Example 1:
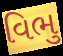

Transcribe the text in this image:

વિભુ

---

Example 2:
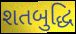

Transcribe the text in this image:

શતબુદ્ધિ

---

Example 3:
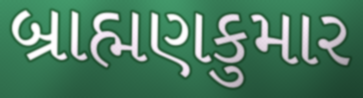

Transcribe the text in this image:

બ્રાહ્મણકુમાર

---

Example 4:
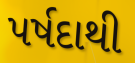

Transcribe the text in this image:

પર્ષદાથી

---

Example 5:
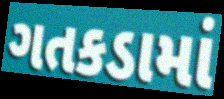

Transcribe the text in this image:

ગતકડામાં